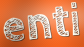
enti